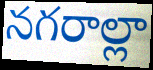
నగరాల్లా